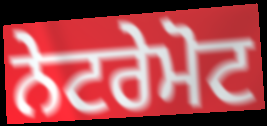
ਨੇਟਰੇਮੋਟ